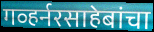
गव्हर्नरसाहेबांचा